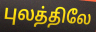
புலத்திலே